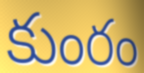
కుంరం